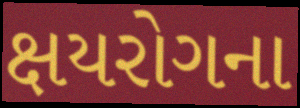
ક્ષયરોગના